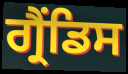
ਗ੍ਰੈਂਡਿਸ